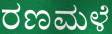
ರಣಮಳೆ